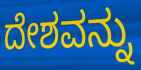
ದೇಶವನ್ನು